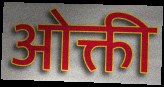
ओक्ती